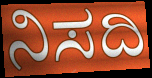
ನಿಸದಿ